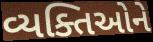
વ્યક્તિઓને